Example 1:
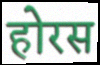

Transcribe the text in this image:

होरस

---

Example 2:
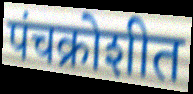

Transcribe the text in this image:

पंचक्रोशीत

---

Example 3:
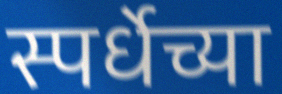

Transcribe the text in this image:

स्पर्धेच्या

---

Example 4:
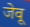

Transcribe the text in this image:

जेवू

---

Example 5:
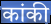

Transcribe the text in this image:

कांकी